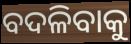
ବଦଳିବାକୁ